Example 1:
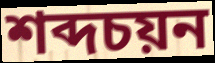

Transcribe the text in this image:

শব্দচয়ন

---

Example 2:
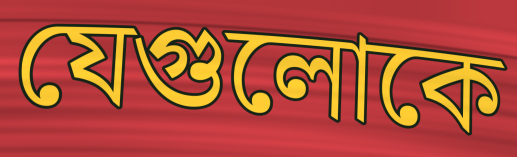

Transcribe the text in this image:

যেগুলোকে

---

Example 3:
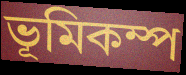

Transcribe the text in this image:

ভূমিকম্প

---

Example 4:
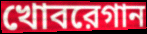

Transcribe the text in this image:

খোবরেগান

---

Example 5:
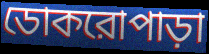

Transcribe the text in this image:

ডোকরোপাড়া